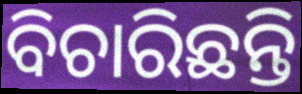
ବିଚାରିଛନ୍ତି